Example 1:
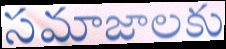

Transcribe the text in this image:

సమాజాలకు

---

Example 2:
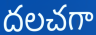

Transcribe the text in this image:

దలచగా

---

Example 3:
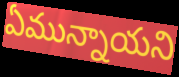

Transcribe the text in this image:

ఏమున్నాయని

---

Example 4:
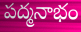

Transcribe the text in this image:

పద్మనాభం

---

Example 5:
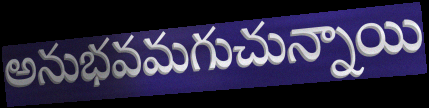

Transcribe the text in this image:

అనుభవమగుచున్నాయి